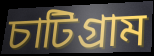
চাটিগ্রাম